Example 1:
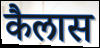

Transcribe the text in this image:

कैलास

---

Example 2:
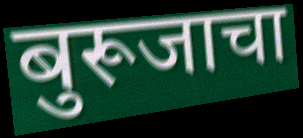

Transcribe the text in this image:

बुरूजाचा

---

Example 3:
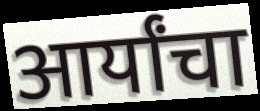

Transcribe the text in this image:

आर्यांचा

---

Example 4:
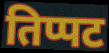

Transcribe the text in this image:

तिप्पट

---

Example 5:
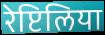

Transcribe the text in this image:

रेप्टिलिया